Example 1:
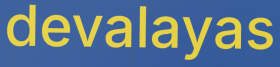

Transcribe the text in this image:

devalayas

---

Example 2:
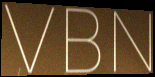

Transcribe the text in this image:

VBN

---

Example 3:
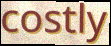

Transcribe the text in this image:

costly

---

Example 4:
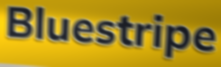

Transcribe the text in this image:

Bluestripe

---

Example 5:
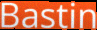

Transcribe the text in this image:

Bastin